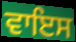
ਵਾਇਸ